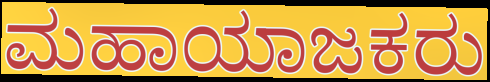
ಮಹಾಯಾಜಕರು